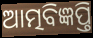
ଆତ୍ମବିଜ୍ଞପ୍ତି